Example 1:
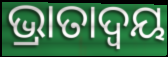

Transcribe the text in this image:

ଭ୍ରାତାଦ୍ୱୟ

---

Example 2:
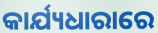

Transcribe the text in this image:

କାର୍ଯ୍ୟଧାରାରେ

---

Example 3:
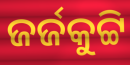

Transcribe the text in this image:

ଜର୍ଜକୁଟ୍ଟି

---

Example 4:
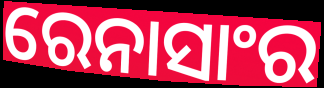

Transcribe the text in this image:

ରେନାସାଂର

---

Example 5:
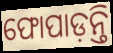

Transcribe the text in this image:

ଫୋପାଡ଼ନ୍ତି